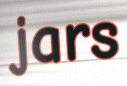
jars